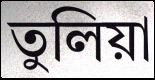
তুলিয়া